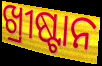
ଖ୍ରୀଷ୍ଟାନ